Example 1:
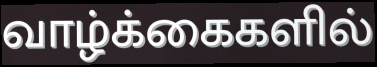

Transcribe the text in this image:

வாழ்க்கைகளில்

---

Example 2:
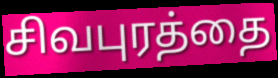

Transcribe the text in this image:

சிவபுரத்தை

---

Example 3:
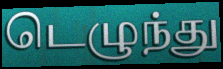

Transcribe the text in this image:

டெழுந்து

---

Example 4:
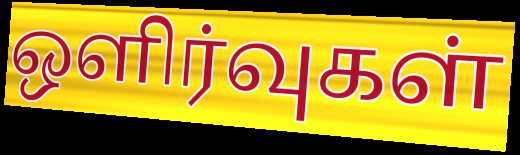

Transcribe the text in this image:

ஒளிர்வுகள்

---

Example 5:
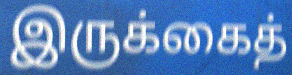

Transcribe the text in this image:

இருக்கைத்